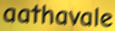
aathavale